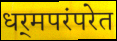
धर्मपरंपरेत